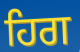
ਹਿਗ